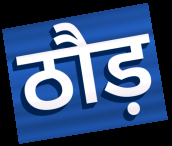
ठौड़